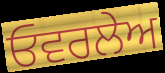
ਓਵਰਲੇਅ